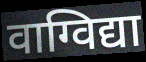
वाग्विद्या